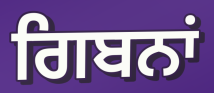
ਗਿਬਨਾਂ